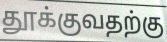
தூக்குவதற்கு